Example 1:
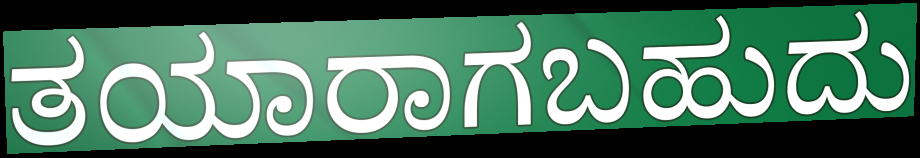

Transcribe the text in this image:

ತಯಾರಾಗಬಹುದು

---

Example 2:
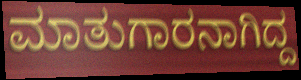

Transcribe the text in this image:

ಮಾತುಗಾರನಾಗಿದ್ದ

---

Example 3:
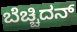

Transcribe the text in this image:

ಬೆಚ್ಚಿದನ್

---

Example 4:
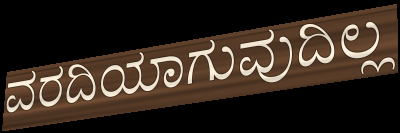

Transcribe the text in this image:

ವರದಿಯಾಗುವುದಿಲ್ಲ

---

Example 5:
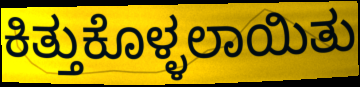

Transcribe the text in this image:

ಕಿತ್ತುಕೊಳ್ಳಲಾಯಿತು